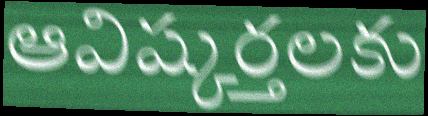
ఆవిష్కర్తలకు